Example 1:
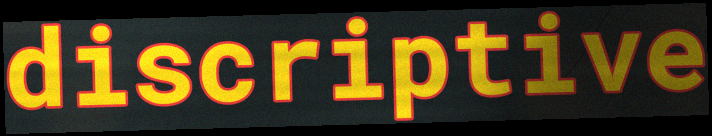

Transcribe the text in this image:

discriptive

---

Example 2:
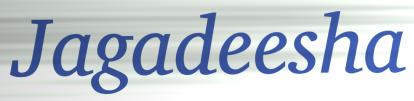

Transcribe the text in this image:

Jagadeesha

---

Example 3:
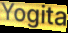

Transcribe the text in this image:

Yogita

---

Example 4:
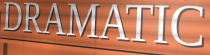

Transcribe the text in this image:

DRAMATIC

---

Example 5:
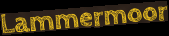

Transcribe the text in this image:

Lammermoor